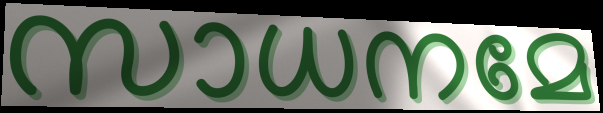
സാധനമേ